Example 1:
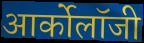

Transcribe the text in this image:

आर्कोलॉजी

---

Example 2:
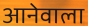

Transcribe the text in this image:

आनेवाला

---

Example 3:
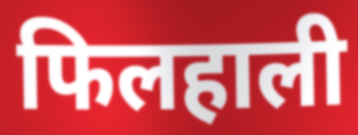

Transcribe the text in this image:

फिलहाली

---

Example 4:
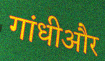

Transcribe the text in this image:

गांधीऔर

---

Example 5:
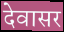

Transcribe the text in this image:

देवासर